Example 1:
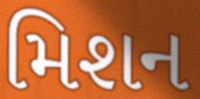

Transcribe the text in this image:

મિશન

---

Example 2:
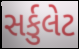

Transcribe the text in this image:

સર્કુલેટ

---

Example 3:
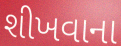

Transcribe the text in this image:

શીખવાના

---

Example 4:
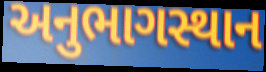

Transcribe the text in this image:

અનુભાગસ્થાન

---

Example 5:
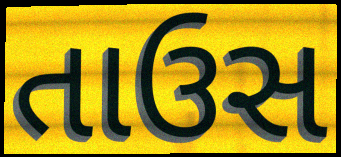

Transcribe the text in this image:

તાઉસ